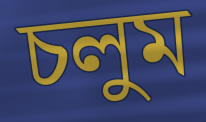
চলুম